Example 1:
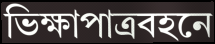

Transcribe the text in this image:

ভিক্ষাপাত্রবহনে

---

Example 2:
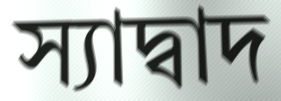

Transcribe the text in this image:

স্যাদ্বাদ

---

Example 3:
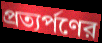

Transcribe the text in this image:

প্রত্যর্পণের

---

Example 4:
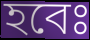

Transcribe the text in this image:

হবেঃ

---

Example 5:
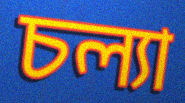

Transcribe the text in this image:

চল্যা